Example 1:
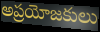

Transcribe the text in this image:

అప్రయోజకులు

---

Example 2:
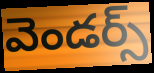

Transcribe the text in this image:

వెండర్స్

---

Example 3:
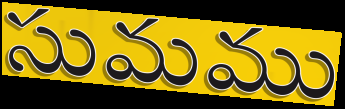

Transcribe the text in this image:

సుమము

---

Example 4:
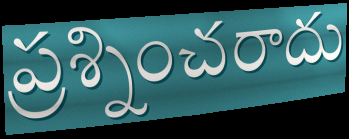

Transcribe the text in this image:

ప్రశ్నించరాదు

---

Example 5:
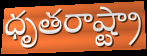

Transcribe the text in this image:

ధృతరాష్ట్రా